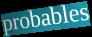
probables